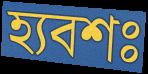
হ্যবশঃ